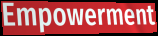
Empowerment